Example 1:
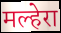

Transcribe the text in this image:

मल्हेरा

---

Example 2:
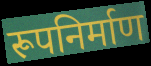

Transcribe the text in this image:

रूपनिर्माण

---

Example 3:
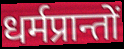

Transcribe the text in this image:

धर्मप्रान्तों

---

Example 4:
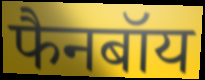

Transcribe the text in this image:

फैनबॉय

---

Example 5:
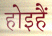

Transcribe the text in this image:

होइहैं